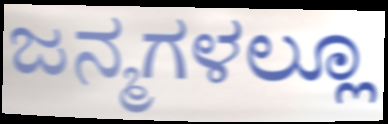
ಜನ್ಮಗಳಲ್ಲೂ